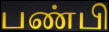
பண்பி